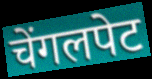
चेंगलपेट